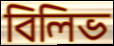
বিলিভ